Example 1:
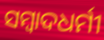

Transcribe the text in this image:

ସମ୍ବାଦଧର୍ମୀ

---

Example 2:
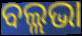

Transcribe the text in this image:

ବଲ୍ଲଭା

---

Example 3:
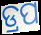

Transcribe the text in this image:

ଡ୍ରପ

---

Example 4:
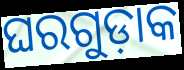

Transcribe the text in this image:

ଘରଗୁଡ଼ାକ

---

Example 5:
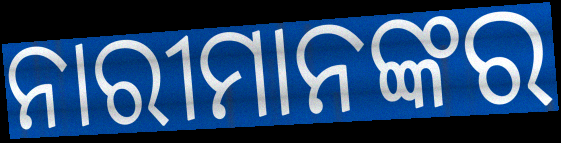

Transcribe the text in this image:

ନାରୀମାନଙ୍କର